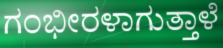
ಗಂಭೀರಳಾಗುತ್ತಾಳೆ